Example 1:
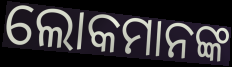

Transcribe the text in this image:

ଲୋକମାନଙ୍କ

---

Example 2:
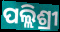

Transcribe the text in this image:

ପଲ୍ଲିଶ୍ରୀ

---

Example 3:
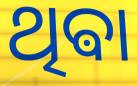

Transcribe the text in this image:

ଥିଵା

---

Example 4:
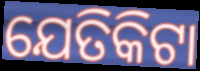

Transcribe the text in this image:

ଯେତିକିଟା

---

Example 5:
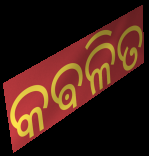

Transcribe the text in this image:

କଵଳିତ